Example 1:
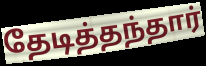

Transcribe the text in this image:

தேடித்தந்தார்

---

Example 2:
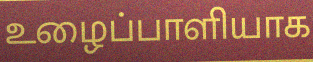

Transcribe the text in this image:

உழைப்பாளியாக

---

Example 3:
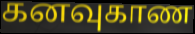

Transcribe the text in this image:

கனவுகாண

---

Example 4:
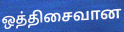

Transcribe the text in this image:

ஒத்திசைவான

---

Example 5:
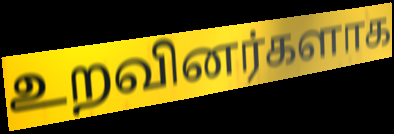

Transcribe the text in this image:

உறவினர்களாக